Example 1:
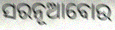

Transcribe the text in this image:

ସରନୂଆବୋଉ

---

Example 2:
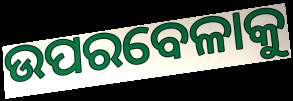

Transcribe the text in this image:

ଉପରବେଳାକୁ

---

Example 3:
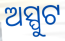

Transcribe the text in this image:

ଅସ୍ପୁଟ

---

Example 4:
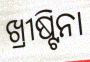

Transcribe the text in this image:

ଖ୍ରୀଷ୍ଟିନା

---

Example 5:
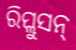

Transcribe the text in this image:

ରିପ୍ଲୁସନ୍